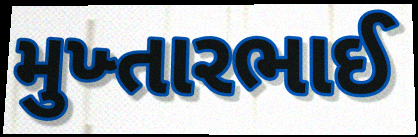
મુખ્તારભાઈ